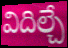
విదిల్చే